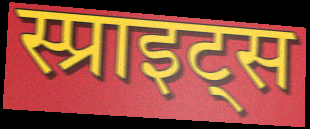
स्प्राइट्स